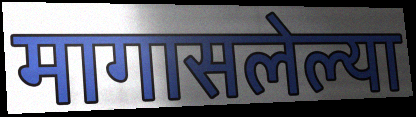
मागासलेल्या